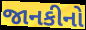
જાનકીનો